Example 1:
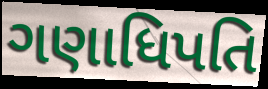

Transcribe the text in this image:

ગણાધિપતિ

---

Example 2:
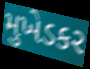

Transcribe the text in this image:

મુખેડકર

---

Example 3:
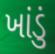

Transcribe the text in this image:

ખાંડું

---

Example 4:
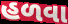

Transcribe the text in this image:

હળવા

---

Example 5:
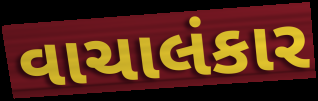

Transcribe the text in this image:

વાચાલંકાર